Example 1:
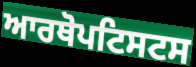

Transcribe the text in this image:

ਆਰਥੋਪਟਿਸਟਸ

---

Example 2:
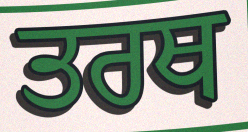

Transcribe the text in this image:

ਤਰਥ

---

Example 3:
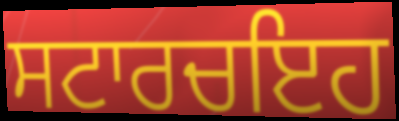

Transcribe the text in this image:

ਸਟਾਰਚਇਹ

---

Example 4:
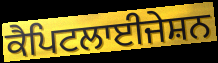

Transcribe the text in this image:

ਕੈਪਿਟਲਾਈਜੇਸ਼ਨ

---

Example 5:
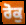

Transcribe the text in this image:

ਰੋਕੁ